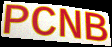
PCNB